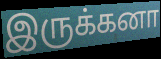
இருக்கனா